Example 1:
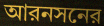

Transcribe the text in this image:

আরনসনের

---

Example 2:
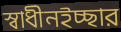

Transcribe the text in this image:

স্বাধীনইচ্ছার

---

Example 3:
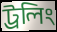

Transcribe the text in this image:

ট্রলিং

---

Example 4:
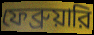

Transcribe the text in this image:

ফেব্রুয়ারি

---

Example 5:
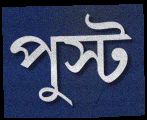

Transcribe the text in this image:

পুস্ট